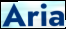
Aria